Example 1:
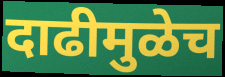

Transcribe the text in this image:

दाढीमुळेच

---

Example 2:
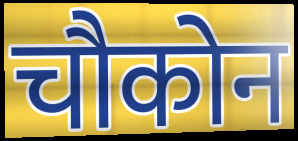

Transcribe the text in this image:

चौकोन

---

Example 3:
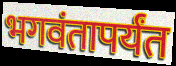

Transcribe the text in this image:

भगवंतापर्यंत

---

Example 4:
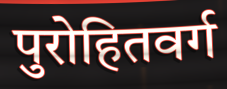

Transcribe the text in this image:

पुरोहितवर्ग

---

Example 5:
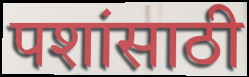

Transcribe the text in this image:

पशांसाठी